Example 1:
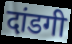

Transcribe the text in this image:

दांडगी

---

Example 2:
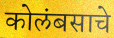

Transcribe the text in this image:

कोलंबसाचे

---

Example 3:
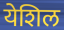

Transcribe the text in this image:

येशिल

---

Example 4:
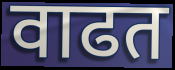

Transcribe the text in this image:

वाढत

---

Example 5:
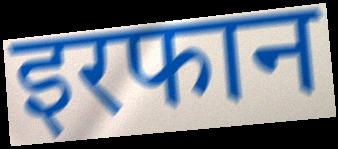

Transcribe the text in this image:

इरफान